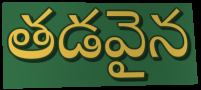
తడవైన